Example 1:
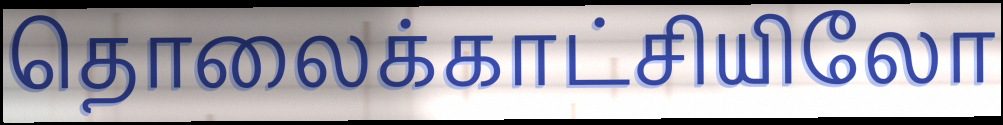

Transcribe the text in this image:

தொலைக்காட்சியிலோ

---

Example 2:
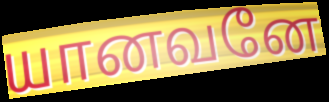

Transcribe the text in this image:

யானவனே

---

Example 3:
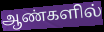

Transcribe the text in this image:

ஆண்களில்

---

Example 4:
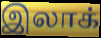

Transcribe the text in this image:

இலாக்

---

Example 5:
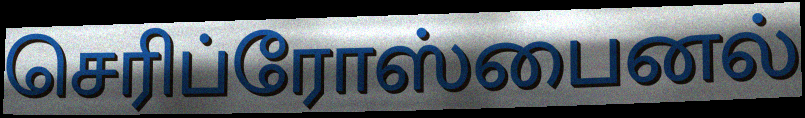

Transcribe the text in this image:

செரிப்ரோஸ்பைனல்